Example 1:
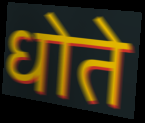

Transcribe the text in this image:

धोते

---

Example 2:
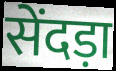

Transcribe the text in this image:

सेंदड़ा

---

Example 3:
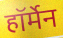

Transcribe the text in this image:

हॉर्मेन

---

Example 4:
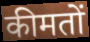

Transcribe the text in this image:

कीमतों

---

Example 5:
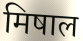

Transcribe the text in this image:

मिषाल